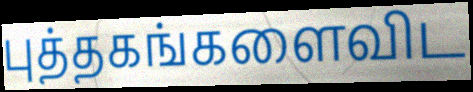
புத்தகங்களைவிட